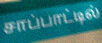
சாப்பாட்டில்